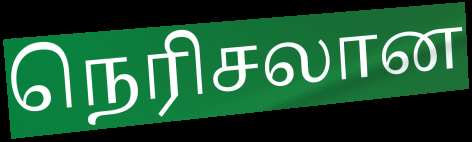
நெரிசலான